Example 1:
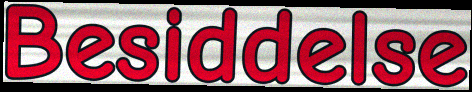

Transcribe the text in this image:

Besiddelse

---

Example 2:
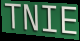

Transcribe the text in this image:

TNIE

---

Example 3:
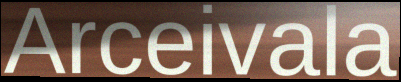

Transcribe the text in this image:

Arceivala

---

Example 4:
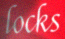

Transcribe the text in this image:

locks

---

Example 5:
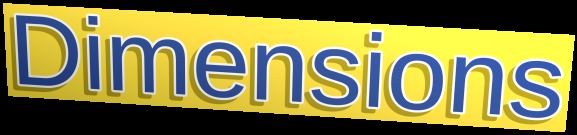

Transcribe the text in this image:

Dimensions